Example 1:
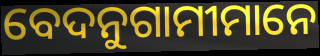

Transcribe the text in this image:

ବେଦନୁଗାମୀମାନେ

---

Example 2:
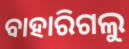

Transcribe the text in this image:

ବାହାରିଗଲୁ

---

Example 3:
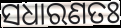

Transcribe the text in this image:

ସଧାରଣତଃ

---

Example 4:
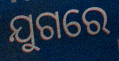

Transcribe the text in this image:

ଯୁଗରେ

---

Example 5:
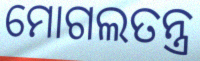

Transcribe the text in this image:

ମୋଗଲତନ୍ତ୍ର